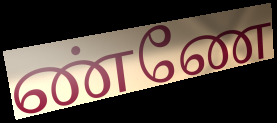
ண்ணே